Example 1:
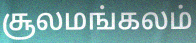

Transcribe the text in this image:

சூலமங்கலம்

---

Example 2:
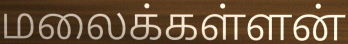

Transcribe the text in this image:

மலைக்கள்ளன்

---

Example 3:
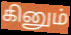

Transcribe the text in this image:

கினும்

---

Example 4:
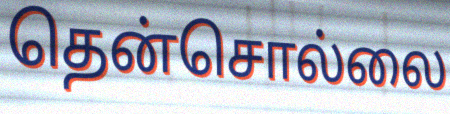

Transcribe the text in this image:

தென்சொல்லை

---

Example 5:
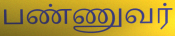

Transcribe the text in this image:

பண்ணுவர்